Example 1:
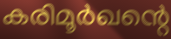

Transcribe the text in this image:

കരിമൂർഖന്റെ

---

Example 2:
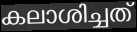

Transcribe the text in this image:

കലാശിച്ചത്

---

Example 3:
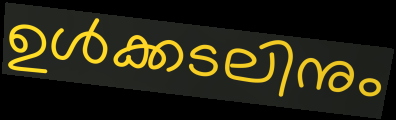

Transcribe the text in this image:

ഉൾക്കടലിനും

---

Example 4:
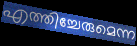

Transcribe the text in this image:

എത്തിച്ചേരുമെന്ന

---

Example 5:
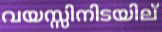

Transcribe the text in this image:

വയസ്സിനിടയില്